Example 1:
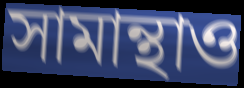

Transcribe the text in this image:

সামান্থাও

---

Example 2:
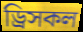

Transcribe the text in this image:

ড্রিসকল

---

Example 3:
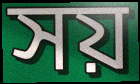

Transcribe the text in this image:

সয়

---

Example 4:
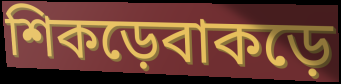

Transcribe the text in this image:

শিকড়েবাকড়ে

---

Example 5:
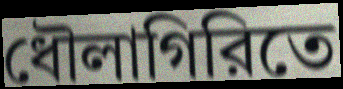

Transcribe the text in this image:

ধৌলাগিরিতে